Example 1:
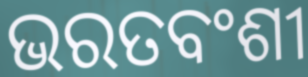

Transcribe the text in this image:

ଭରତବଂଶୀ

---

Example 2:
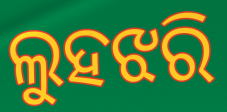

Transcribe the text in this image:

ଲୁହଝରି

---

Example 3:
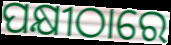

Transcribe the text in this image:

ପକ୍ଷୀଠାରେ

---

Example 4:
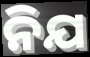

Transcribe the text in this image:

ନିଯ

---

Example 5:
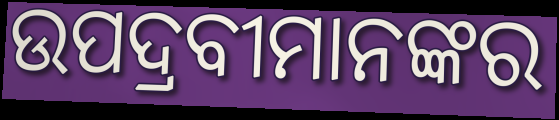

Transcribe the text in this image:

ଉପଦ୍ରବୀମାନଙ୍କର